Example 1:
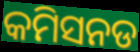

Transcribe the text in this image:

କମିସନଡ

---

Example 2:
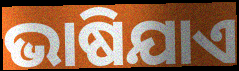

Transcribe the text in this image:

ଭାଷିଯାଏ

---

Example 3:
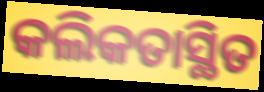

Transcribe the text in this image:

କଲିକତାସ୍ଥିତ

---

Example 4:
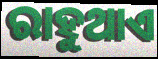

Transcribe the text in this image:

ରାହୁଥାଏ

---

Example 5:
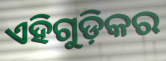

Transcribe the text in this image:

ଏହିଗୁଡ଼ିକର